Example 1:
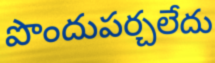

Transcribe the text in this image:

పొందుపర్చలేదు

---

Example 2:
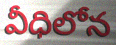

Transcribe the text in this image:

వీధిలోన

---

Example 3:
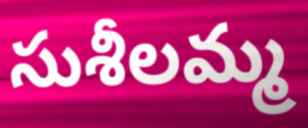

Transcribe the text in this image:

సుశీలమ్మ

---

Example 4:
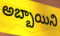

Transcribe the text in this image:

అబ్బాయిని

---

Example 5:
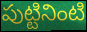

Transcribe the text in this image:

పుట్టినింటి